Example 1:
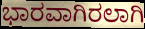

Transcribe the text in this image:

ಭಾರವಾಗಿರಲಾಗಿ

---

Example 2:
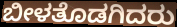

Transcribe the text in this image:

ಬೀಳತೊಡಗಿದರು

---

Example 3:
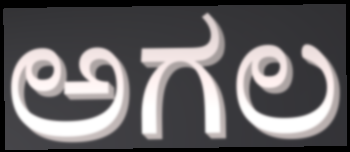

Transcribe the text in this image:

ಅಗಲ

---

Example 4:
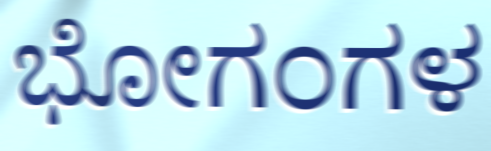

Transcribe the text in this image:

ಭೋಗಂಗಳ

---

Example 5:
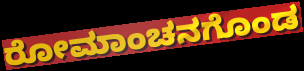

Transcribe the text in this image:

ರೋಮಾಂಚನಗೊಂಡ